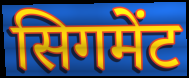
सिगमेंट